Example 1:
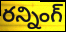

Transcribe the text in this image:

రన్నింగ్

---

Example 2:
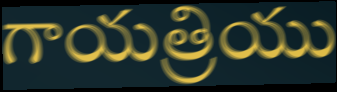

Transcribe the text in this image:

గాయత్రియు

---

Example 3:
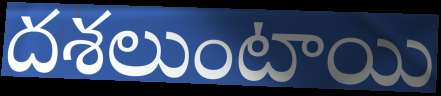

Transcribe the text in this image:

దశలుంటాయి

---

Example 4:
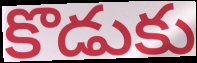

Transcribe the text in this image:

కొడుకు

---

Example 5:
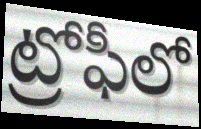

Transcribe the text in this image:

ట్రోఫీలో